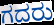
ಗದರು